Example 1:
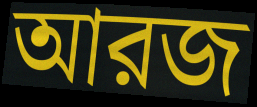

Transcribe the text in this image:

আরজ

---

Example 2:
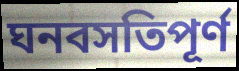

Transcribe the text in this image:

ঘনবসতিপূর্ণ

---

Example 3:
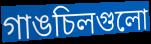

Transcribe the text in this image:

গাঙচিলগুলো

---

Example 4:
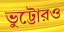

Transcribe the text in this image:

ভুট্টোরও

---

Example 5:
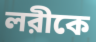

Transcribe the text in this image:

লরীকে